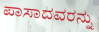
ಪಾಸಾದವರನ್ನು